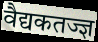
वैद्यकतज्ज्ञ